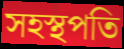
সহস্থপতি